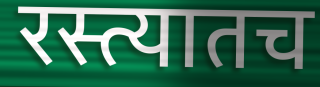
रस्त्यातच